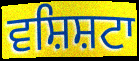
ਵਸ਼ਿਸ਼ਟਾ